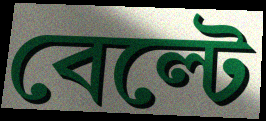
বেল্টে